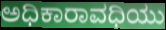
ಅಧಿಕಾರಾವಧಿಯು